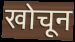
खोचून